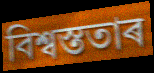
বিশ্বস্ততাৰ